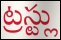
ట్రస్ట్లు